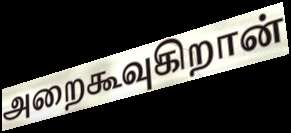
அறைகூவுகிறான்